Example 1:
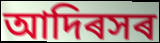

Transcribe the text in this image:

আদিৰসৰ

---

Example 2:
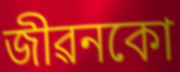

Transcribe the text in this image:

জীৱনকো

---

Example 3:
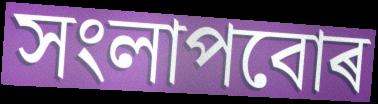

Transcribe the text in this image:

সংলাপবোৰ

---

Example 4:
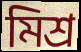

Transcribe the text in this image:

মিশ্ৰ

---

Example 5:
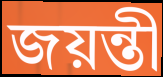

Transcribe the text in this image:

জয়ন্তী